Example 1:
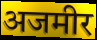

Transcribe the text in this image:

अजमीर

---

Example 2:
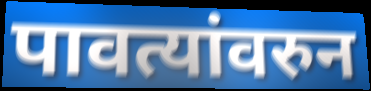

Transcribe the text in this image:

पावत्यांवरुन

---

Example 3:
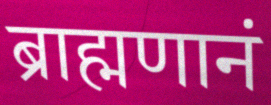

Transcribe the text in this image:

ब्राह्मणानं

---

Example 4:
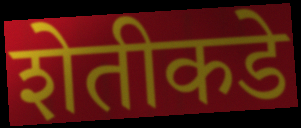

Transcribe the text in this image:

शेतीकडे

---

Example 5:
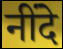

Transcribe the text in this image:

नींदे